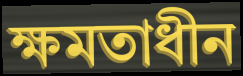
ক্ষমতাধীন